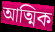
আত্মিক